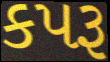
કપરૂ